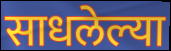
साधलेल्या